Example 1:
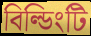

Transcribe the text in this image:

বিল্ডিংটি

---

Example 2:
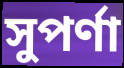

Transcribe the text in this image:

সুপর্ণা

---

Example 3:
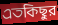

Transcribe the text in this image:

এতকিছুর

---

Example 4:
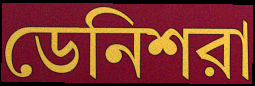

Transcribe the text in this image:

ডেনিশরা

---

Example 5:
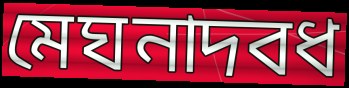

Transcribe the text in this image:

মেঘনাদবধ